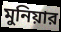
মুনিয়ার